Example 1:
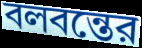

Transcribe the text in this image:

বলবন্তের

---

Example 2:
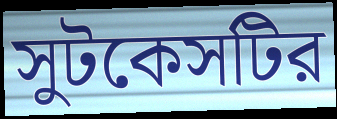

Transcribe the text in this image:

সুটকেসটির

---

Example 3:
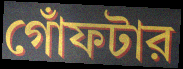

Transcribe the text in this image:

গোঁফটার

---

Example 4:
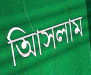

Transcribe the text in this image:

আিসলাম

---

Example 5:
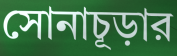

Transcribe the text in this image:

সোনাচূড়ার